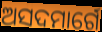
ଅସଦମାର୍ଗେ